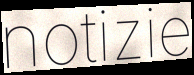
notizie